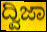
ದ್ವಿಜಾ